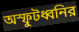
অস্ফুটধ্বনির